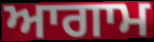
ਆਗਾਮ